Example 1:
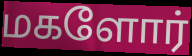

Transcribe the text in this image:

மகளோர்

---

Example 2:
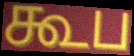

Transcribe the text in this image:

கூப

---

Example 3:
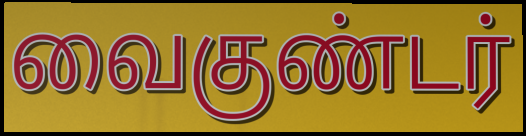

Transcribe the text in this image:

வைகுண்டர்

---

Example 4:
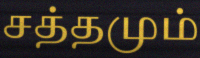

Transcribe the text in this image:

சத்தமும்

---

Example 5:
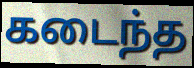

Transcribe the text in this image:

கடைந்த